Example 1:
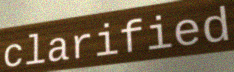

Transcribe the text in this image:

clarified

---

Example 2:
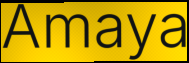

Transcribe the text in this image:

Amaya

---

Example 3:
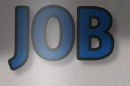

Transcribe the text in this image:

JOB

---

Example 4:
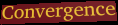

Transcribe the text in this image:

Convergence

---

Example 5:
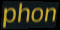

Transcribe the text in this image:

phon